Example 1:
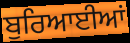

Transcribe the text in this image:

ਬੁਰਿਆਈਆਂ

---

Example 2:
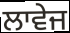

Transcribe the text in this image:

ਲਾਵੇਜ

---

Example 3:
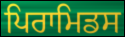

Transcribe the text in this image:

ਪਿਰਾਮਿਡਸ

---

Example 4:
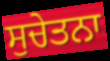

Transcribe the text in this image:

ਸੁਚੇਤਨਾ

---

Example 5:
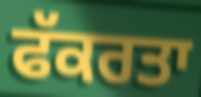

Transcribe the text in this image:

ਫੱਕਰਤਾ